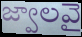
జ్వాలవై